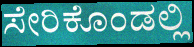
ಸೇರಿಕೊಂಡಲ್ಲಿ